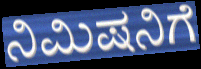
ನಿಮಿಷನಿಗೆ